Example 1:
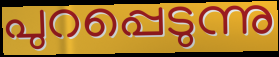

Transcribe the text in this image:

പുറപ്പെടുന്നു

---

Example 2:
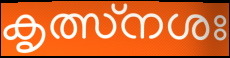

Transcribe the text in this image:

കൃത്സ്നശഃ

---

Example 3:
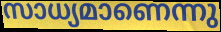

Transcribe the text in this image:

സാധ്യമാണെന്നു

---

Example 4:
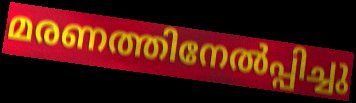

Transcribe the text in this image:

മരണത്തിനേൽപ്പിച്ചു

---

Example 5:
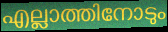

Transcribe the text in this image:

എല്ലാത്തിനോടും